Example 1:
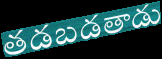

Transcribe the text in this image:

తడబడతాడు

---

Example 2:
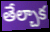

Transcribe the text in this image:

తేల్చాక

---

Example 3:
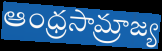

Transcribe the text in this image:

ఆంధ్రసామ్రాజ్య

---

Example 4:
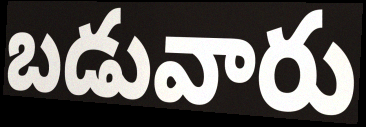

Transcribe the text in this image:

బడువారు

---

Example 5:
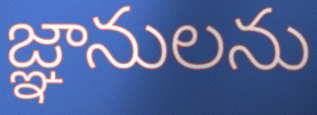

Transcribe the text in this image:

జ్ఞానులను